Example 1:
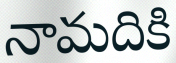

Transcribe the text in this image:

నామదికి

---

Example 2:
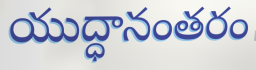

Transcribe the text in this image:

యుద్ధానంతరం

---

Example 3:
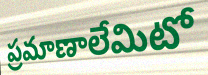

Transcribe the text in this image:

ప్రమాణాలేమిటో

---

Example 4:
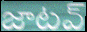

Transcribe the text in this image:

జాటవ్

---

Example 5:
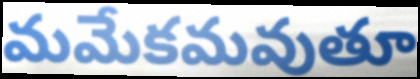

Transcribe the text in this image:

మమేకమవుతూ